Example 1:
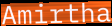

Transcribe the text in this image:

Amirtha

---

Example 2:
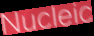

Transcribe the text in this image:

Nucleic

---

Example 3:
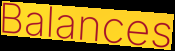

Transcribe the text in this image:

Balances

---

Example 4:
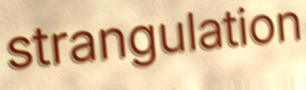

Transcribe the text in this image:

strangulation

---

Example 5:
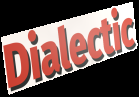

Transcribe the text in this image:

Dialectic